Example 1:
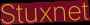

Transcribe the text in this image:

Stuxnet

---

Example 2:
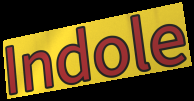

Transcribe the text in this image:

Indole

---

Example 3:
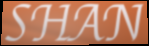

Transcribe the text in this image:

SHAN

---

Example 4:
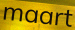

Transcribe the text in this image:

maart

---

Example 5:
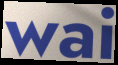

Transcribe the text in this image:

wai